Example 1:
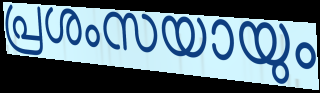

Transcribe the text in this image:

പ്രശംസയായും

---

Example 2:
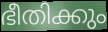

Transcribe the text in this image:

ഭീതിക്കും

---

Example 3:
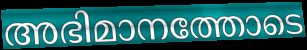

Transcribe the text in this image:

അഭിമാനത്തോടെ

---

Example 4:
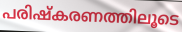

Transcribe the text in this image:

പരിഷ്കരണത്തിലൂടെ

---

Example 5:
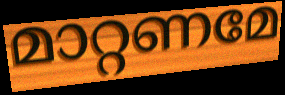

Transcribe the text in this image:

മാറ്റണമേ